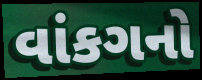
વાંકગનો